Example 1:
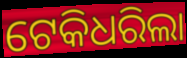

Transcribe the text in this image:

ଟେକିଧରିଲା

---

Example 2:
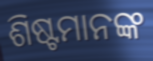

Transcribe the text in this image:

ଶିଷ୍ଟମାନଙ୍କ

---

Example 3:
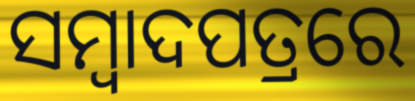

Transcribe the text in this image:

ସମ୍ୱାଦପତ୍ରରେ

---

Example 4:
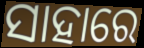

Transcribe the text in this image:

ସାହାରେ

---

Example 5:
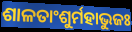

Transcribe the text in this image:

ଶାଳତାଂଶୁର୍ମହାଭୁଜଃ